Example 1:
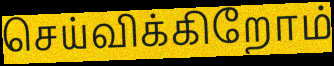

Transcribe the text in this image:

செய்விக்கிறோம்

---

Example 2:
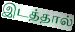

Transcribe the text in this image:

இடத்தால்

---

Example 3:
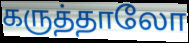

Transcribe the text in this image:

கருத்தாலோ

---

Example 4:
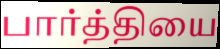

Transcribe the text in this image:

பார்த்தியை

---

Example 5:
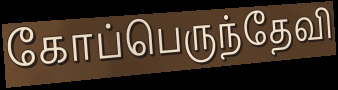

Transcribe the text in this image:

கோப்பெருந்தேவி